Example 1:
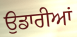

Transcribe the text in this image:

ਉਡਾਰੀਆਂ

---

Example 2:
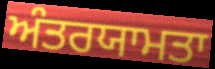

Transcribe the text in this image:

ਅੰਤਰਯਾਮਤਾ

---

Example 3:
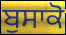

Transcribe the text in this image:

ਬੁਸਾਕੋ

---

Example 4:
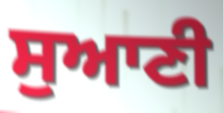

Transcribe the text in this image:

ਸੁਆਣੀ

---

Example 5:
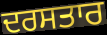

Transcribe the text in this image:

ਦਰਸਤਾਰ